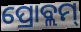
ପ୍ରୋବ୍ଲମ୍